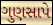
ગુણસાપે